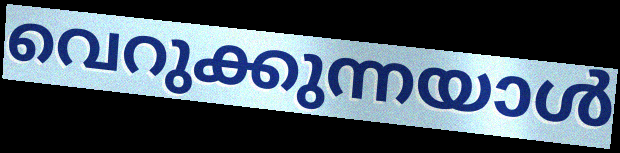
വെറുക്കുന്നയാൾ